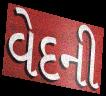
વેદની